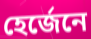
হেৰ্জেনে